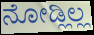
ನೋಡ್ಲಿಲ್ಲ